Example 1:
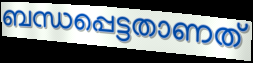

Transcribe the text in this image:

ബന്ധപ്പെട്ടതാണത്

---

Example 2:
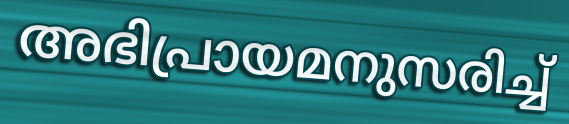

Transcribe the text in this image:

അഭിപ്രായമനുസരിച്ച്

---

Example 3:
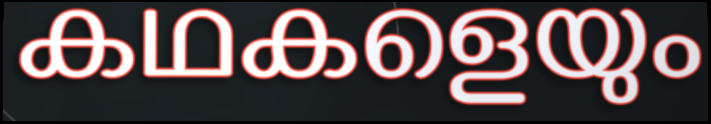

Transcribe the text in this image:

കഥകളെയും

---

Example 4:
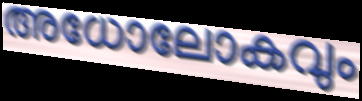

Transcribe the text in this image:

അധോലോകവും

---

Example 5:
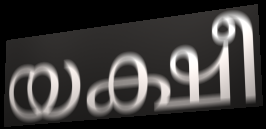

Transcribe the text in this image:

യക്ഷീ